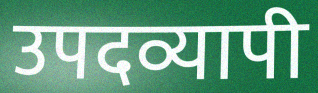
उपदव्यापी